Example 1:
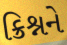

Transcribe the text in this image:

ક્રિશ્નને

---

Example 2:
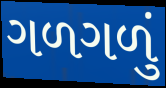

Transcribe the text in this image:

ગળગળું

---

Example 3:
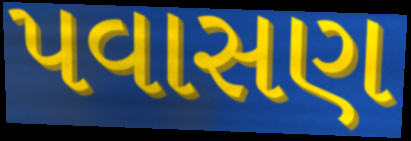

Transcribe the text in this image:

પવાસણ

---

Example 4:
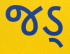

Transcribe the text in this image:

જડ્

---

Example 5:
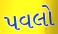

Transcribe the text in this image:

પવલો